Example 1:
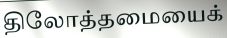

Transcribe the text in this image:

திலோத்தமையைக்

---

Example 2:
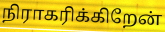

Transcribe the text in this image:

நிராகரிக்கிறேன்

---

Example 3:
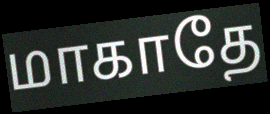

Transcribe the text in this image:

மாகாதே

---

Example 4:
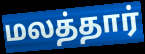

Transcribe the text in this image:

மலத்தார்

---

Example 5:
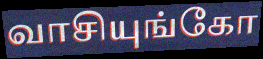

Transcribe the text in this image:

வாசியுங்கோ